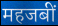
महजबीं